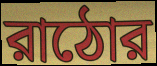
রাঠোর